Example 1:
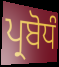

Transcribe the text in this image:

ਪ੍ਰਬੋਧੰ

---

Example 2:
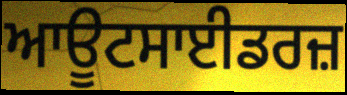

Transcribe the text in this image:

ਆਊਟਸਾਈਡਰਜ਼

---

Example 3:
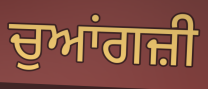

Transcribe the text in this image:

ਚੁਆਂਗਜ਼ੀ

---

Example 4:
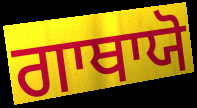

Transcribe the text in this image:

ਗਾਥਾਯੋ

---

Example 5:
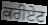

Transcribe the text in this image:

ਕਰੀਏਟ